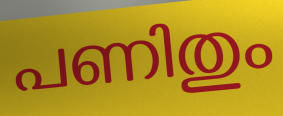
പണിതും